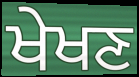
ਖੇਖਣ